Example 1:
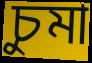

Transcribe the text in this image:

চুমা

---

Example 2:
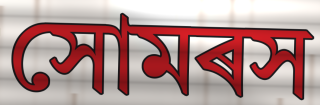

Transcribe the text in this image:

সোমৰস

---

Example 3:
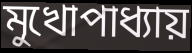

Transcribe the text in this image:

মুখোপাধ্যায়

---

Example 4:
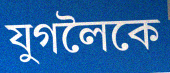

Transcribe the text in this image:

যুগলৈকে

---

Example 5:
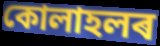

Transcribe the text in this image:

কোলাহলৰ